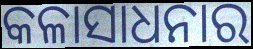
କଳାସାଧନାର